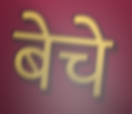
बेचे